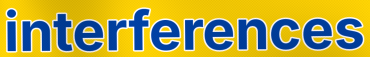
interferences